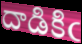
దాడికిఁ